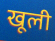
खूली